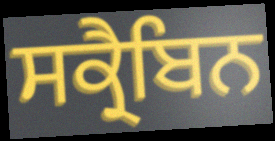
ਸਕ੍ਰੈਬਿਨ